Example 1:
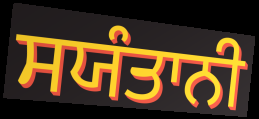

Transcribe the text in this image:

ਸਯੰਤਾਨੀ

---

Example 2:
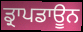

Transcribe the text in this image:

ਡ੍ਰਾਪਡਾਊਨ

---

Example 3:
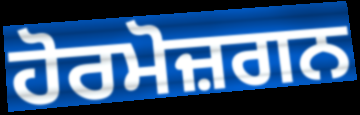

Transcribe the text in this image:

ਹੋਰਮੋਜ਼ਗਨ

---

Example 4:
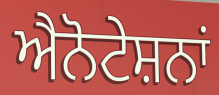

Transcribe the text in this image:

ਐਨੋਟੇਸ਼ਨਾਂ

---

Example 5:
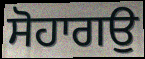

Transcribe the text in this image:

ਸੋਹਾਗਉ